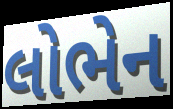
લોભેન